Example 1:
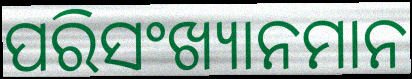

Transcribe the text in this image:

ପରିସଂଖ୍ୟାନମାନ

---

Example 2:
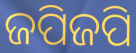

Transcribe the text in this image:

ଜପିଜପି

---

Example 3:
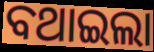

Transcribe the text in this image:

ବଥାଇଲା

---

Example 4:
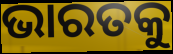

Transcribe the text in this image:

ଭାରତକୁ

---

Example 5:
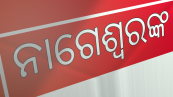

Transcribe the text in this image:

ନାଗେଶ୍ୱରଙ୍କ